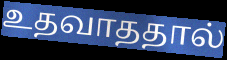
உதவாததால்